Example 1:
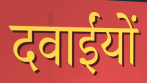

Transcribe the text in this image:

दवाईंयों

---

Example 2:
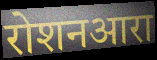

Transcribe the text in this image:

रोशनआरा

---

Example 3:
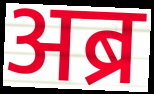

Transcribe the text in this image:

अब्र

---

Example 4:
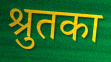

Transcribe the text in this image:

श्रुतका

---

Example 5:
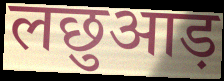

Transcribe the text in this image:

लछुआड़